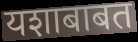
यशाबाबत